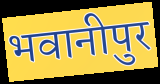
भवानीपुर